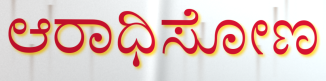
ಆರಾಧಿಸೋಣ